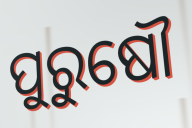
ପୁରୁଷୌ